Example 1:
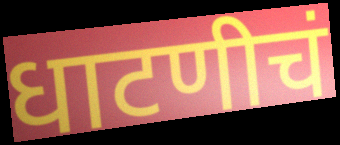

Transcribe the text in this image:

धाटणीचं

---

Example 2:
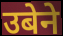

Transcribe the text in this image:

उबेने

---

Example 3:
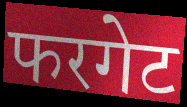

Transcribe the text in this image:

फरगेट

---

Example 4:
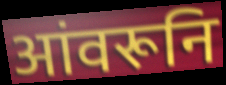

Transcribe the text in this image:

आंवरूनि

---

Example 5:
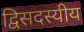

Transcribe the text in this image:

द्विसदस्यीय